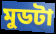
মুডটা